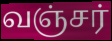
வஞ்சர்